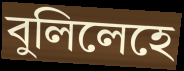
বুলিলেহে